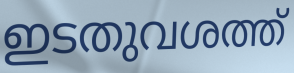
ഇടതുവശത്ത്